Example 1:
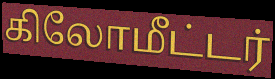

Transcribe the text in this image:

கிலோமீட்டர்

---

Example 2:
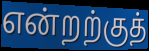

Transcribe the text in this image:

என்றற்குத்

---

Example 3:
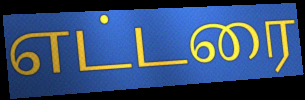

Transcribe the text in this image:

எட்டரை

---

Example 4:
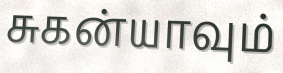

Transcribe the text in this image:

சுகன்யாவும்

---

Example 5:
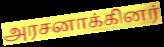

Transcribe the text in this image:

அரசனாக்கினர்